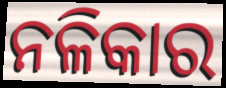
ନଳିକାର